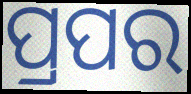
ପ୍ରପର